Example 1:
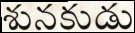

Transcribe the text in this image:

శునకుడు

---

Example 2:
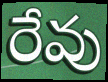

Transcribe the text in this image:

రేవు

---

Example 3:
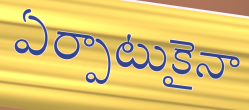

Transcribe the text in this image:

ఏర్పాటుకైనా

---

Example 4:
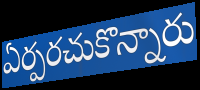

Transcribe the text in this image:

ఏర్పరచుకొన్నారు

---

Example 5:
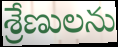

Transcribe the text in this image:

శ్రేణులను